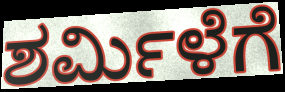
ಶರ್ಮಿಳೆಗೆ